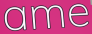
ame